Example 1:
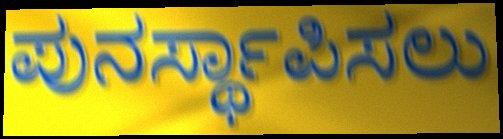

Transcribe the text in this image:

ಪುನರ್ಸ್ಥಾಪಿಸಲು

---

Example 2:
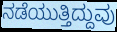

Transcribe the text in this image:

ನಡೆಯುತ್ತಿದ್ದುವು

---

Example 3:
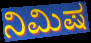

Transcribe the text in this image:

ನಿಮಿಷ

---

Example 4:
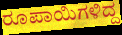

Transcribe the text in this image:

ರೂಪಾಯಿಗಳಿದ್ದ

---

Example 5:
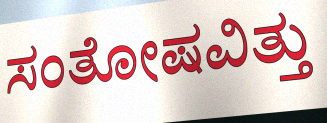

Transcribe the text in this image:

ಸಂತೋಷವಿತ್ತು